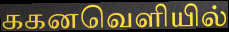
ககனவெளியில்